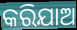
କରିଯାଅ